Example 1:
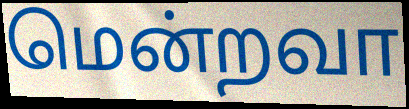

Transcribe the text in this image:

மென்றவா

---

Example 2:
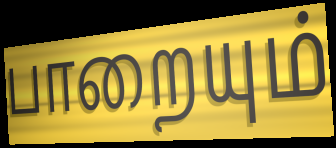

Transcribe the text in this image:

பாறையும்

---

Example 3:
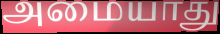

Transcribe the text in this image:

அமையாது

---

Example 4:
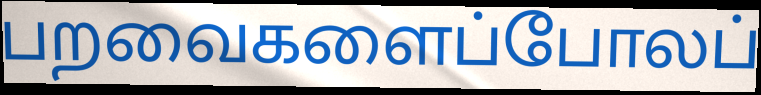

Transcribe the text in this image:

பறவைகளைப்போலப்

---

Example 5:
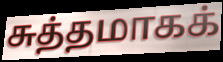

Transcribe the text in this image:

சுத்தமாகக்